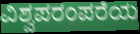
ವಿಶ್ವಪರಂಪರೆಯ